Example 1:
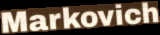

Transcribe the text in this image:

Markovich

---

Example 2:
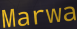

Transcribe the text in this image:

Marwa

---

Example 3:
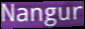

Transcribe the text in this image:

Nangur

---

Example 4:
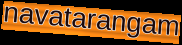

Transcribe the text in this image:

navatarangam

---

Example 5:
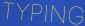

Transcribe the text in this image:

TYPING